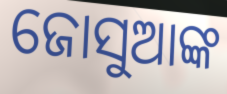
ଜୋସୁଆଙ୍କ